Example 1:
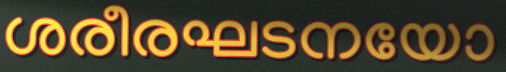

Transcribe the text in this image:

ശരീരഘടനയോ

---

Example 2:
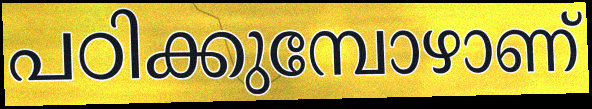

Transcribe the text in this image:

പഠിക്കുമ്പോഴാണ്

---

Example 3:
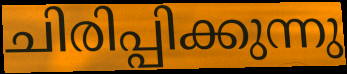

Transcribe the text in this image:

ചിരിപ്പിക്കുന്നു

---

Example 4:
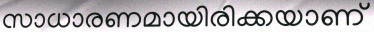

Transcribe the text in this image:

സാധാരണമായിരിക്കയാണ്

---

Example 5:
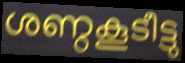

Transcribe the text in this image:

ശണ്ഠകൂടീട്ടു